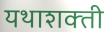
यथाशक्‍ती